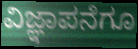
ವಿಜ್ಞಾಪನೆಗೂ